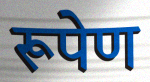
रूपेण